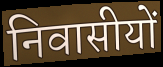
निवासीयों